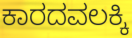
ಕಾರದವಲಕ್ಕಿ